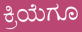
ಕ್ರಿಯೆಗೂ